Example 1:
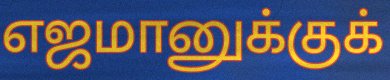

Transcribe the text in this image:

எஜமானுக்குக்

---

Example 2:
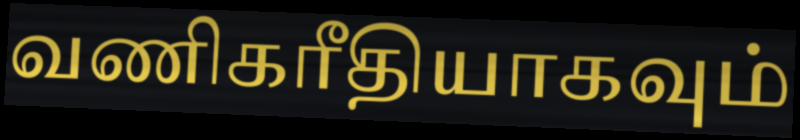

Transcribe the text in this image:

வணிகரீதியாகவும்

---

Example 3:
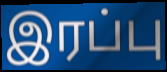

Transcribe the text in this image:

இரப்பு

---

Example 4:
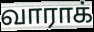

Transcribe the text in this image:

வாராக்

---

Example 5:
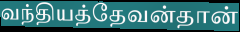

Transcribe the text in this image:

வந்தியத்தேவன்தான்